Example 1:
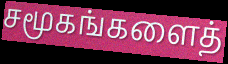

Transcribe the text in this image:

சமூகங்களைத்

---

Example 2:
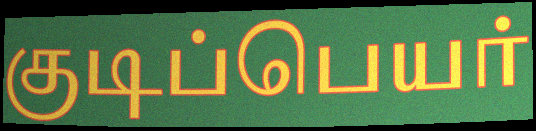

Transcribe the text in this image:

குடிப்பெயர்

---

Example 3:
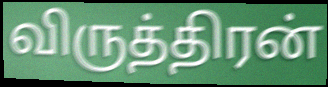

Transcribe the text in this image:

விருத்திரன்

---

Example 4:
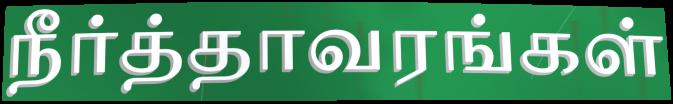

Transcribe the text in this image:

நீர்த்தாவரங்கள்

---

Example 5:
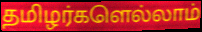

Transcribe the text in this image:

தமிழர்களெல்லாம்